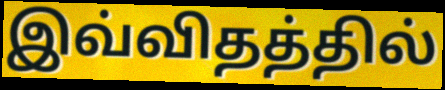
இவ்விதத்தில்